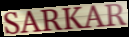
SARKAR